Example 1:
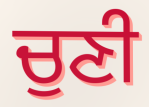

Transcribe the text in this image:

ਚੁਣੀ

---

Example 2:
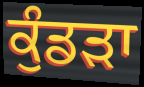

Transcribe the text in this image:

ਕੁੰਡੜਾ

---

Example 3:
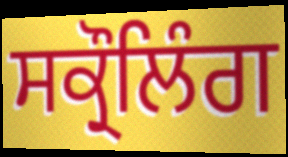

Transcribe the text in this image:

ਸਕ੍ਰੌਲਿੰਗ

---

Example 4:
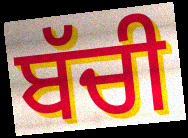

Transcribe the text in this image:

ਬੱਚੀ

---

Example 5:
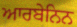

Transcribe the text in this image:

ਆਰਬੇਨਿਨ